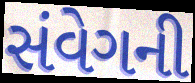
સંવેગની